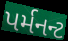
પર્મનન્ટ